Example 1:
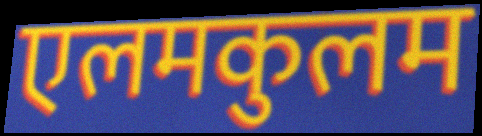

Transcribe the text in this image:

एलमकुलम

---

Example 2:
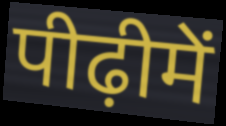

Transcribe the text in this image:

पीढ़ीमें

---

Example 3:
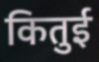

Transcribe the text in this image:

कितुई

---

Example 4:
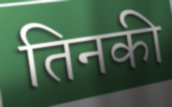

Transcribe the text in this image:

तिनकी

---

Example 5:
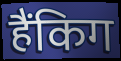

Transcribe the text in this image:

हैंकिग